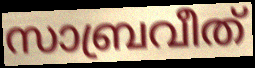
സാബ്രവീത്